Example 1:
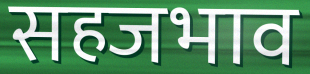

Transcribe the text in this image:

सहजभाव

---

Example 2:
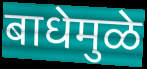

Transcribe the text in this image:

बाधेमुळे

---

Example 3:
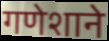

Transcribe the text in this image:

गणेशाने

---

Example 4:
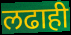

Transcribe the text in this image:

लढाही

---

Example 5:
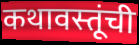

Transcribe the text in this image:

कथावस्तूंची